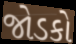
જોડકો